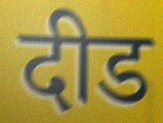
दीड